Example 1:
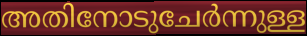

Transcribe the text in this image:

അതിനോടുചേർന്നുള്ള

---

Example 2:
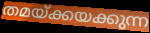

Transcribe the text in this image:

തമയ്ക്കയക്കുന്ന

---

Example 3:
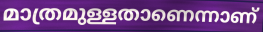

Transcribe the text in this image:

മാത്രമുള്ളതാണെന്നാണ്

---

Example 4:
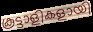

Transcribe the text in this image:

കൂട്ടാളികളായി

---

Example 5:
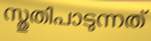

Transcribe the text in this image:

സ്തുതിപാടുന്നത്